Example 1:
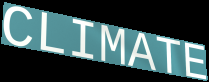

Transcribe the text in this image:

CLIMATE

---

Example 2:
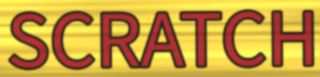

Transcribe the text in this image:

SCRATCH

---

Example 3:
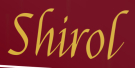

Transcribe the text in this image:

Shirol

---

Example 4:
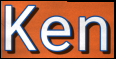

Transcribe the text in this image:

Ken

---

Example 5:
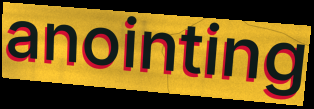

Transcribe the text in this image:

anointing